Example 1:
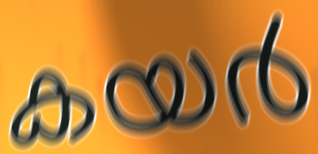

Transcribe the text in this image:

കയർ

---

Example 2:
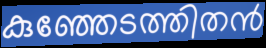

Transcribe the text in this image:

കുഞ്ഞേടത്തിതൻ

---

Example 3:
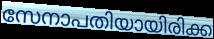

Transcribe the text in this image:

സേനാപതിയായിരിക്ക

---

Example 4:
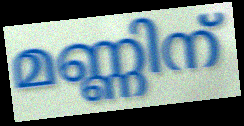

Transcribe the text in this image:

മണ്ണിന്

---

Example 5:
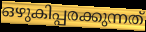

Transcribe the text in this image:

ഒഴുകിപ്പരക്കുന്നത്